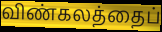
விண்கலத்தைப்